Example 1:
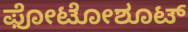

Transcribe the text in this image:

ಫೋಟೋಶೂಟ್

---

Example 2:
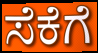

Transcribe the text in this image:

ಸೆಕೆಗೆ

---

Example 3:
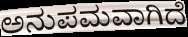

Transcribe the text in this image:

ಅನುಪಮವಾಗಿದೆ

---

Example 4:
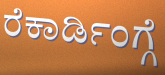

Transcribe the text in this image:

ರೆಕಾರ್ಡಿಂಗ್ಗೆ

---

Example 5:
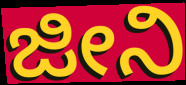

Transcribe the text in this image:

ಜೀನಿ